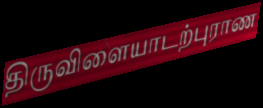
திருவிளையாடற்புராண